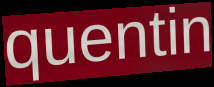
quentin